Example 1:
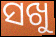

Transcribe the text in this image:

ସଖୁ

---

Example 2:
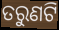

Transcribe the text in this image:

ତରୁଣଟି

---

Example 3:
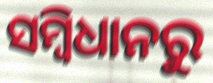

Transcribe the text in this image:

ସମ୍ବିଧାନରୁ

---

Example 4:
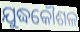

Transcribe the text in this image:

ଯୁଦ୍ଧକୌଶଳ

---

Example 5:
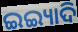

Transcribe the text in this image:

ଇଇ୍ୟାଦି